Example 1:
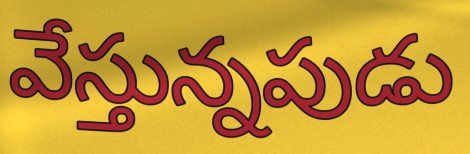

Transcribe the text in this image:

వేస్తున్నపుడు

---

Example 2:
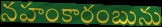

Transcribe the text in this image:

నహంకారంబును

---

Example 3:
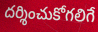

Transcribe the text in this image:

దర్శించుకోగలిగే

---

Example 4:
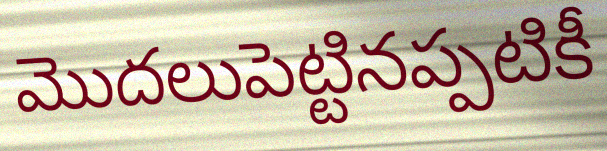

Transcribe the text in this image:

మొదలుపెట్టినప్పటికీ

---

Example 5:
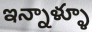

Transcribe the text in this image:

ఇన్నాళ్ళూ